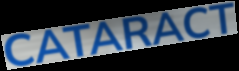
CATARACT